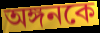
অঙ্গনকে